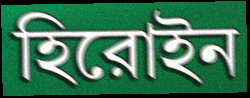
হিরোইন